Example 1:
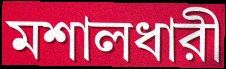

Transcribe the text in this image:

মশালধারী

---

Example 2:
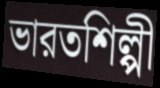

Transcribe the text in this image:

ভারতশিল্পী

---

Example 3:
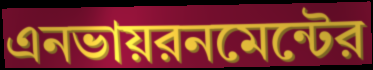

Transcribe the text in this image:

এনভায়রনমেন্টের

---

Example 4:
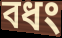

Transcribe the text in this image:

বধং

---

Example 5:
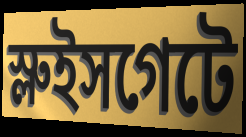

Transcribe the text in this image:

স্লুইসগেটে